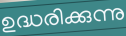
ഉദ്ധരിക്കുന്നു